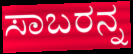
ಸಾಬರನ್ನ